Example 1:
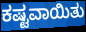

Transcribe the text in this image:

ಕಷ್ಟವಾಯಿತು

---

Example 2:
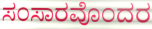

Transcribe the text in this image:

ಸಂಸಾರವೊಂದರ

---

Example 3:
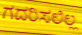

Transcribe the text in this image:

ಗದರಿಸಲಿಲ್ಲ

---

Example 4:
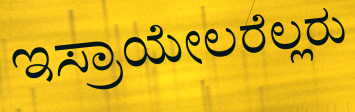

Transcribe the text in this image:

ಇಸ್ರಾಯೇಲರೆಲ್ಲರು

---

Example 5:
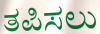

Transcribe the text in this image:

ತಪಿಸಲು